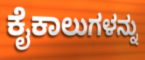
ಕೈಕಾಲುಗಳನ್ನು